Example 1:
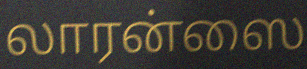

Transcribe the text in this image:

லாரன்ஸை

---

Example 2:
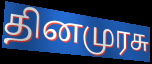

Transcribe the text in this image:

தினமுரசு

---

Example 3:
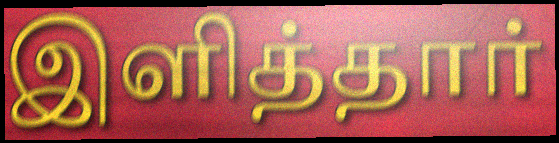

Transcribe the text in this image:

இளித்தார்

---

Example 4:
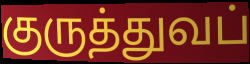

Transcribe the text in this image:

குருத்துவப்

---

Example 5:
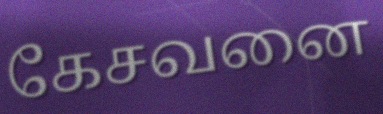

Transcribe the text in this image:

கேசவனை